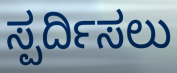
ಸ್ಪರ್ದಿಸಲು